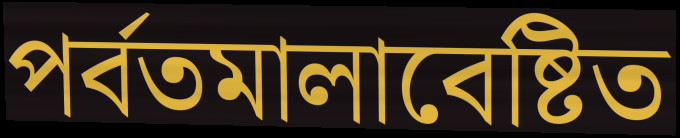
পর্বতমালাবেষ্টিত